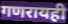
गणरायही